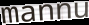
mannu